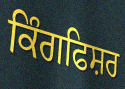
ਕਿੰਗਫਿਸ਼ਰ